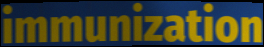
immunization